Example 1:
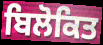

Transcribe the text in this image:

ਬਿਲੋਕਿਤ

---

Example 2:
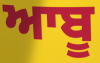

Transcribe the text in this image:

ਆਬੂ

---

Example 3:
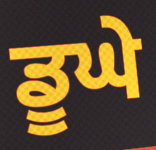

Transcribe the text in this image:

ਡੂਘੇ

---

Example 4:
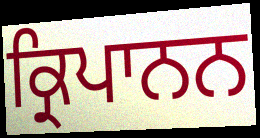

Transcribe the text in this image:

ਕ੍ਰਿਪਾਨਨ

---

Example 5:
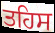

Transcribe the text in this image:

ਤਹਿਸ